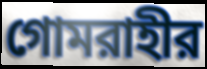
গোমরাহীর